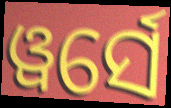
ୱର୍ସେ